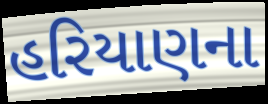
હરિયાણના